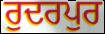
ਰੁਦਰਪੁਰ